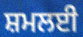
ਸ਼ਮਲਈ